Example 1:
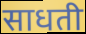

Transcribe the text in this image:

साधती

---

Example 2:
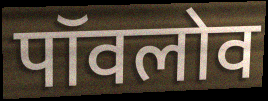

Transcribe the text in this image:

पॉवलोव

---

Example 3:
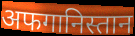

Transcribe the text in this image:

अफगानिस्तान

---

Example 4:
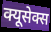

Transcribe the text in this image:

क्यूसेक्स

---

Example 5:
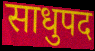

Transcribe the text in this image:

साधुपद